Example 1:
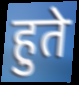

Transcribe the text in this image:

हुते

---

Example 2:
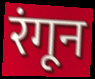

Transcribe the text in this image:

रंगून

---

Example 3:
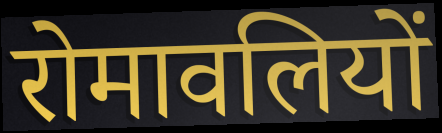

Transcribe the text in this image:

रोमावलियों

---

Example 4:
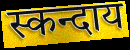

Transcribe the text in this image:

स्कन्दाय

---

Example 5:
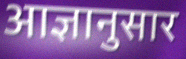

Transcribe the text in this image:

आज्ञानुसार